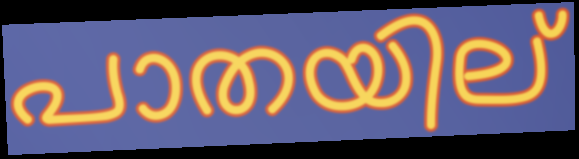
പാതയില്